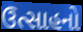
ઉત્સાહનો